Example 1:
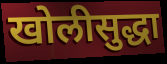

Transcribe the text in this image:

खोलीसुद्धा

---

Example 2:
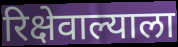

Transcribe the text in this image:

रिक्षेवाल्याला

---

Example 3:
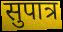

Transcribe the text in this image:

सुपात्र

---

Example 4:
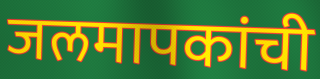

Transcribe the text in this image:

जलमापकांची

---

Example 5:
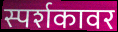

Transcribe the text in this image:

स्पर्शकावर